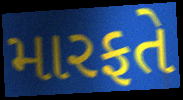
મારફતે